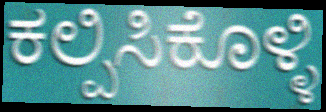
ಕಲ್ಪಿಸಿಕೊಳ್ಳಿ